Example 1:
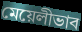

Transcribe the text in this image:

মেয়েলীভাব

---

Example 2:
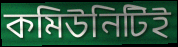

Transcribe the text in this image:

কমিউনিটিই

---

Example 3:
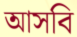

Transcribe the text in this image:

আসবি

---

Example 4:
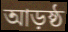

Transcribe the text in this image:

আড়ষ্ঠ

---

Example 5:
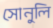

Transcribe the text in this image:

সোনুলি